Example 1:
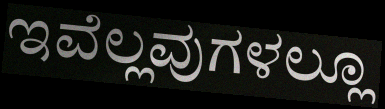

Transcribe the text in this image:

ಇವೆಲ್ಲವುಗಳಲ್ಲೂ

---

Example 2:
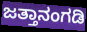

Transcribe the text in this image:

ಜತ್ತಾನಂಗಡಿ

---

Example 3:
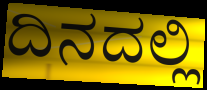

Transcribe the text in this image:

ದಿನದಲ್ಲಿ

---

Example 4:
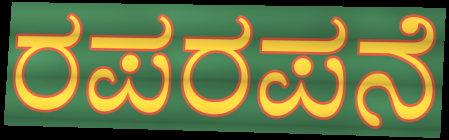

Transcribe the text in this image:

ರಪರಪನೆ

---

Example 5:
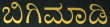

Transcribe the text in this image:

ಬಿಗಿಮಾಡಿ